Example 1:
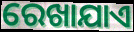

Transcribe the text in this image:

ରେଖାଯାଏ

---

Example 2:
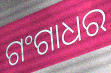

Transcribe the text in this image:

ଗଂଗାଧର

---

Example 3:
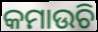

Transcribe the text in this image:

କମାଉଚି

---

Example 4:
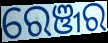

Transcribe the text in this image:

ରେଞ୍ଜର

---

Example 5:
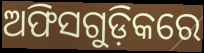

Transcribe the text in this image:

ଅଫିସଗୁଡ଼ିକରେ